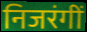
निजरंगीं